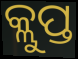
କ୍ଲୁପ୍ତ